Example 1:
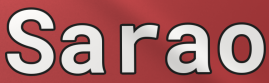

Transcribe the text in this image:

Sarao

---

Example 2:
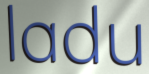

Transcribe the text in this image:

ladu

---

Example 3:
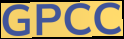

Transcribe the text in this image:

GPCC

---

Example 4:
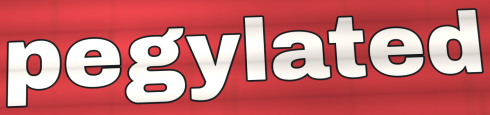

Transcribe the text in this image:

pegylated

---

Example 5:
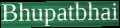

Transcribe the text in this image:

Bhupatbhai